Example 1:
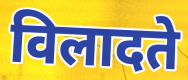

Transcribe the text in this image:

विलादते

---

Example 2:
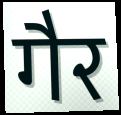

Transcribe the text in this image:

गैर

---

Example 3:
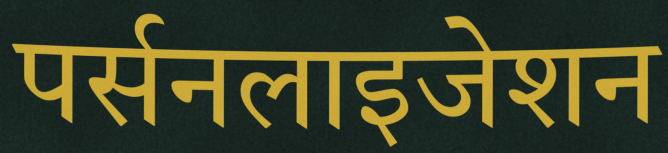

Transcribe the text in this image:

पर्सनलाइजेशन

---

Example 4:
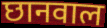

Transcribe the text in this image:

छानवाल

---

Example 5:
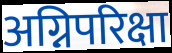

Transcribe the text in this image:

अग्निपरिक्षा